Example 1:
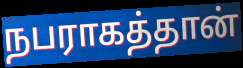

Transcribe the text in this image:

நபராகத்தான்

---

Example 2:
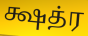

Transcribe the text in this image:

க்ஷத்ர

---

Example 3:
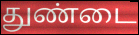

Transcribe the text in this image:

துண்டை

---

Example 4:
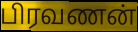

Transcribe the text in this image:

பிரவணன்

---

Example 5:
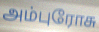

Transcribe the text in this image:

அம்புரோசு